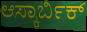
ಆಸ್ಕಾರ್ಬಿಕ್